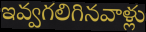
ఇవ్వగలిగినవాళ్లు